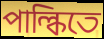
পাল্কিতে